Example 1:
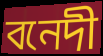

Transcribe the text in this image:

বনেদী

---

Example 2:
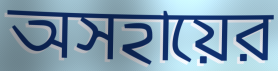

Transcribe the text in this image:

অসহায়ের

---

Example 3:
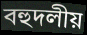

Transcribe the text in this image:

বহুদলীয়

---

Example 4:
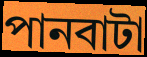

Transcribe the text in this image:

পানবাটা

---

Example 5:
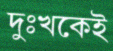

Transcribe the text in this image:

দুঃখকেই